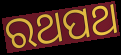
ରଥପଥ